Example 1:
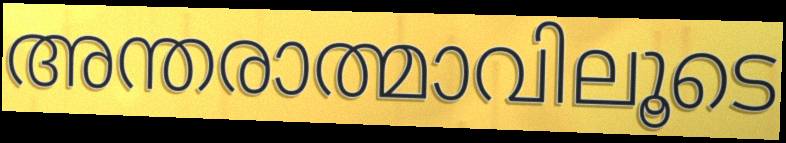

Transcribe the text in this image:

അന്തരാത്മാവിലൂടെ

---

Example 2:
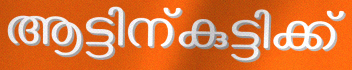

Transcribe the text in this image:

ആട്ടിന്കുട്ടിക്ക്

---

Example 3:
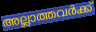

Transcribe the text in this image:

അല്ലാത്തവർക്ക്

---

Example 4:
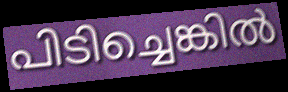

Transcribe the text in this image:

പിടിച്ചെങ്കിൽ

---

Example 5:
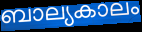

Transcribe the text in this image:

ബാല്യകാലം